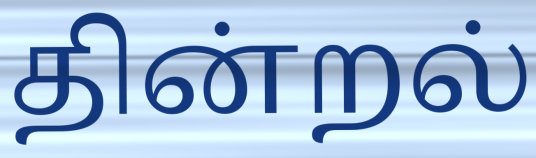
தின்றல்